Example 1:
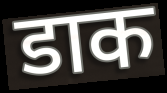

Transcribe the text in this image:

डाक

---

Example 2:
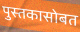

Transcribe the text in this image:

पुस्तकासोबत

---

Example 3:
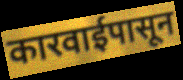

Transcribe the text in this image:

कारवाईपासून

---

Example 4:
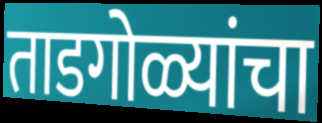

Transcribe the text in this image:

ताडगोळ्यांचा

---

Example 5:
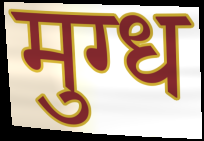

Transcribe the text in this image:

मुग्ध